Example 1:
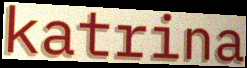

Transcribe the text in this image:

katrina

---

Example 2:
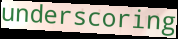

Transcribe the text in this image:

underscoring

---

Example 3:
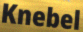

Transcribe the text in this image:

Knebel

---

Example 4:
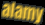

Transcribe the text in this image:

alamy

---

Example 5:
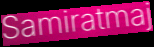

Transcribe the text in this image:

Samiratmaj